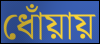
ধোঁয়ায়